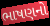
ભાષણનો